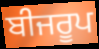
ਬੀਜਰੂਪ